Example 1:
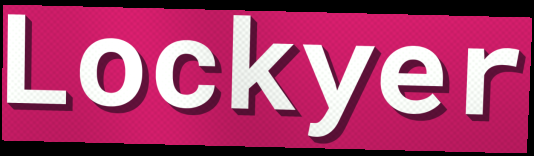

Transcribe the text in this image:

Lockyer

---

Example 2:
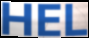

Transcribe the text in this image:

HEL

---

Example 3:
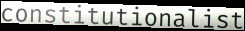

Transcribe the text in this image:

constitutionalist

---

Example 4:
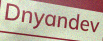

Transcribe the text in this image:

Dnyandev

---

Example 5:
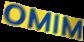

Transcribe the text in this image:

OMIM